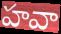
హవా